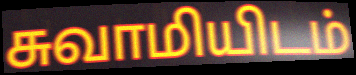
சுவாமியிடம்